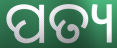
ପତ୍ୟ